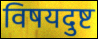
विषयदुष्ट